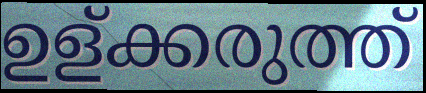
ഉള്ക്കരുത്ത്